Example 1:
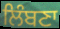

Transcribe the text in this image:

ਲਿੰਬਣਾ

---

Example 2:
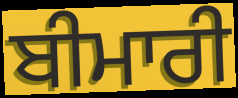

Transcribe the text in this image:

ਬੀਮਾਰੀ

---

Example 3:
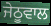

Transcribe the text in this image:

ਜੇਠੂਵਾਲ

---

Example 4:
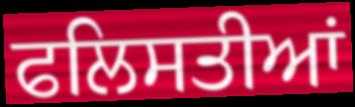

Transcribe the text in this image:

ਫਲਿਸਤੀਆਂ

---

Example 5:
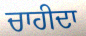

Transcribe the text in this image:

ਚਾਹੀਦਾ